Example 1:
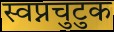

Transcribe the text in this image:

स्वप्नचुटुक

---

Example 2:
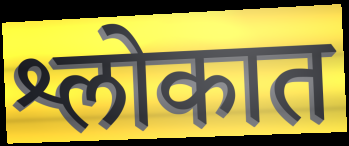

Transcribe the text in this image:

श्लोकात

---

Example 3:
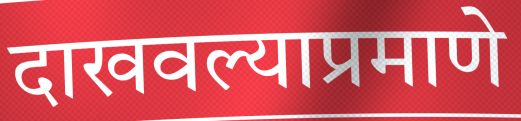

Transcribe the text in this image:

दाखवल्याप्रमाणे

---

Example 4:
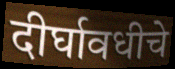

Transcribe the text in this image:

दीर्घावधीचे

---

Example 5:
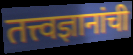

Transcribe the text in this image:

तत्त्वज्ञानांची